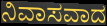
ನಿವಾಸವಾದ